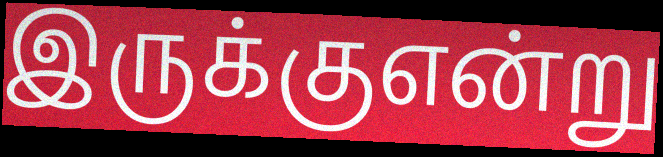
இருக்குஎன்று